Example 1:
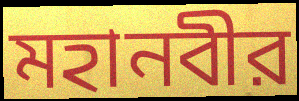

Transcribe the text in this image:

মহানবীর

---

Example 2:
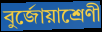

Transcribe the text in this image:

বুর্জোয়াশ্রেণী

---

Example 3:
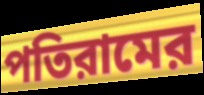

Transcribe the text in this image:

পতিরামের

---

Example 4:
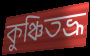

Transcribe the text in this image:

কুঞ্চিতভ্রূ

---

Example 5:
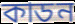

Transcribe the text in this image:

কাডন